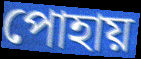
পোহায়